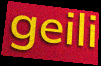
geili